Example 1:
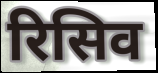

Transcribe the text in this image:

रिसिव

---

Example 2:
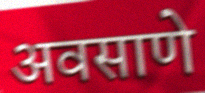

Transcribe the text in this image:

अवसाणे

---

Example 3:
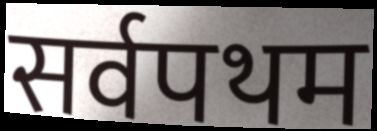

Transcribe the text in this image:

सर्वपथम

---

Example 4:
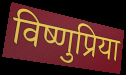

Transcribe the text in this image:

विष्णुप्रिया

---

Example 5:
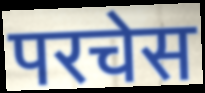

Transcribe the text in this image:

परचेस